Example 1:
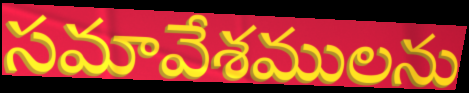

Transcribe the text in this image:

సమావేశములను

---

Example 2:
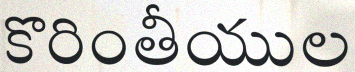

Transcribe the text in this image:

కొరింతీయుల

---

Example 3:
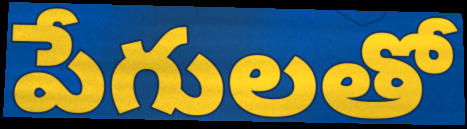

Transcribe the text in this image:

పేగులతో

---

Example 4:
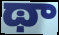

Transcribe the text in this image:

థా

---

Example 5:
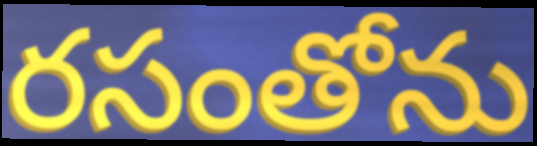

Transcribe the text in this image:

రసంతోను